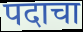
पदाचा